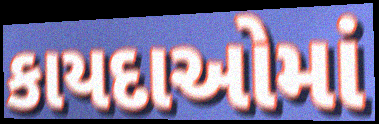
કાયદાઓમાં